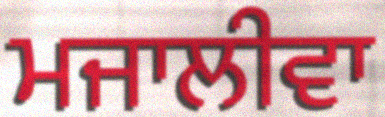
ਮਜਾਲੀਵਾ